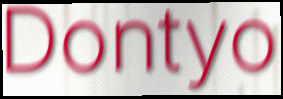
Dontyo